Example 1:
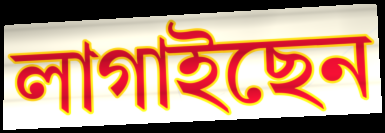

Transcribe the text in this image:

লাগাইছেন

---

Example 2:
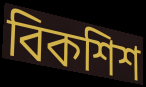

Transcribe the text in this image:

বিকশিশ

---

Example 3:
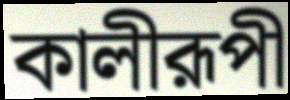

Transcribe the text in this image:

কালীরূপী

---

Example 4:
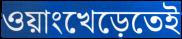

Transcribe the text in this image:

ওয়াংখেড়েতেই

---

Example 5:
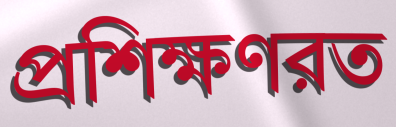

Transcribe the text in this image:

প্রশিক্ষণরত